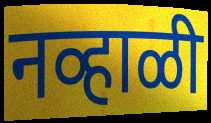
नव्हाळी